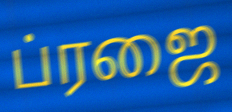
ப்ரஜை